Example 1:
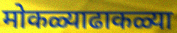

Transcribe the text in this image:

मोकळ्याढाकळ्या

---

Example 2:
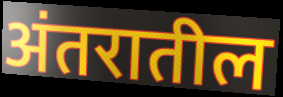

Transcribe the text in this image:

अंतरातील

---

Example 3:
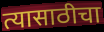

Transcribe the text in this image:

त्यासाठीचा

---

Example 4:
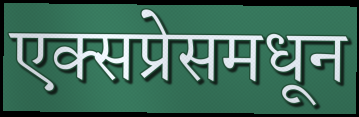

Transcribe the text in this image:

एक्सप्रेसमधून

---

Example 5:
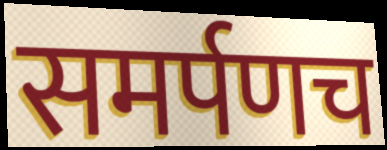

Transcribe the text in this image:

समर्पणच